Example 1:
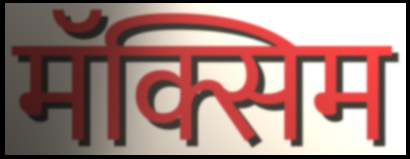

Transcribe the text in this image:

मॅक्सिम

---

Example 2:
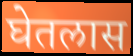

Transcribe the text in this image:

घेतलास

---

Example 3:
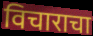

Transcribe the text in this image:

विचाराचा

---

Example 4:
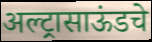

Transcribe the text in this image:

अल्ट्रासाऊंडचे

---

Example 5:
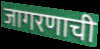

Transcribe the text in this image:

जागरणाची